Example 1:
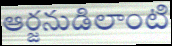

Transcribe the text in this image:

ఆర్జనుడిలాంటి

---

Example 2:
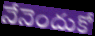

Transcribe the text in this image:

నేనెందుకో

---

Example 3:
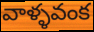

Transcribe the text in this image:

వాళ్ళవంక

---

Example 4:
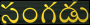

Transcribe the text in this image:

సంగడు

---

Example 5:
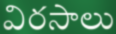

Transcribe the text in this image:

విరసాలు